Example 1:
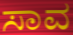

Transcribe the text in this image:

ಸಾವ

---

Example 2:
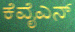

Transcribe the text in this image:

ಕೆವೈಎನ್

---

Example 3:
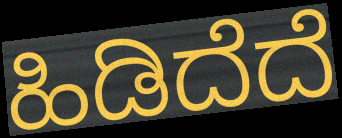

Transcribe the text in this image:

ಹಿಡಿದೆದೆ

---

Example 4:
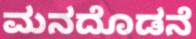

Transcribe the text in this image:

ಮನದೊಡನೆ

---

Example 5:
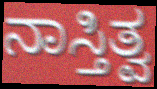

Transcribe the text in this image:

ನಾಸ್ತಿತ್ವ